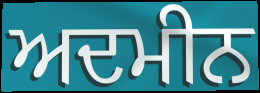
ਅਦਮੀਨ